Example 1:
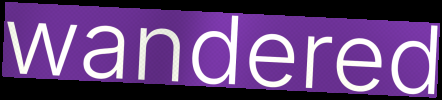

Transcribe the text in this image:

wandered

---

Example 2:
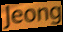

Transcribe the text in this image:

Jeong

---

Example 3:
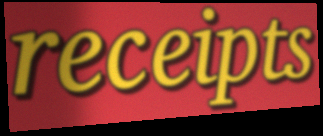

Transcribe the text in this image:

receipts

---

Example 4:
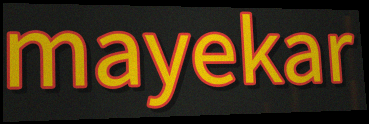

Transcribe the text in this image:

mayekar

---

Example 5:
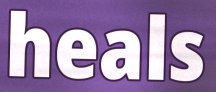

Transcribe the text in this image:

heals